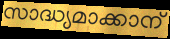
സാദ്ധ്യമാക്കാന്